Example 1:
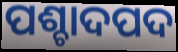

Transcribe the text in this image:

ପଶ୍ଚାଦପଦ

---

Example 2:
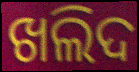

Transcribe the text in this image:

ଖଲିଦ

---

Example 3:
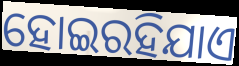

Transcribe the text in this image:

ହୋଇରହିଯାଏ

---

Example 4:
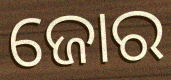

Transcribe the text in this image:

ଜୋର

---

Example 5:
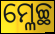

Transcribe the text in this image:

ମ୍ଳେଚ୍ଛ